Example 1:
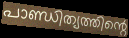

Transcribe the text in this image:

പാണ്ഡിത്യത്തിന്റെ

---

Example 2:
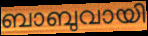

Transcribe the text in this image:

ബാബുവായി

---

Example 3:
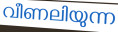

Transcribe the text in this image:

വീണലിയുന്ന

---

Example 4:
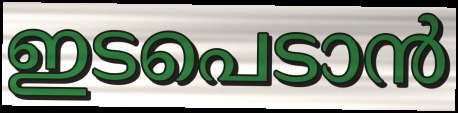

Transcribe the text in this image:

ഇടപെടാൻ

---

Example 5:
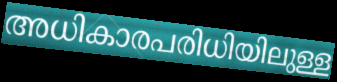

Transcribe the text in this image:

അധികാരപരിധിയിലുള്ള